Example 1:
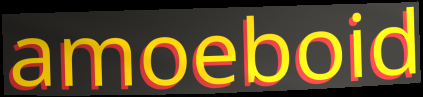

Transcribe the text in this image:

amoeboid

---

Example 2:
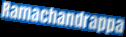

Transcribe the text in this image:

Ramachandrappa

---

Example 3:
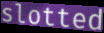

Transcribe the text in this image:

slotted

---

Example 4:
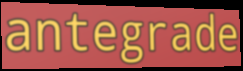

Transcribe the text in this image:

antegrade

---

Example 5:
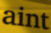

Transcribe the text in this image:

aint